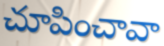
చూపించావా